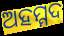
ଅହମ୍ମଦ